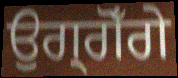
ਉਗ੍ਗੋਁਗੇ